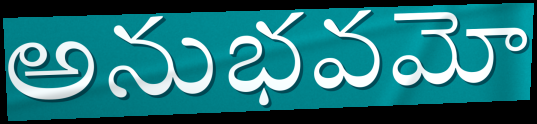
అనుభవమో